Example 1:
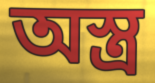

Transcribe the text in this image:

অস্ত্র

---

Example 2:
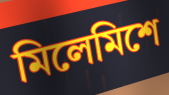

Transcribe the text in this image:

মিলেমিশে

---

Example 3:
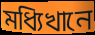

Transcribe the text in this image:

মধ্যিখানে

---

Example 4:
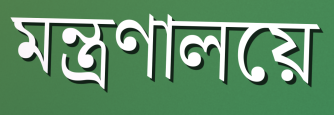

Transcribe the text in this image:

মন্ত্রণালয়ে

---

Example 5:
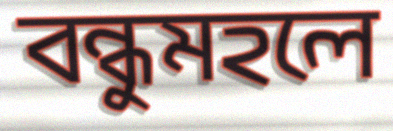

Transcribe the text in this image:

বন্ধুমহলে